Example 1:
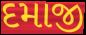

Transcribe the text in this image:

દમાજી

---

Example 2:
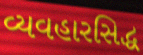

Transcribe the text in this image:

વ્યવહારસિદ્ધ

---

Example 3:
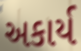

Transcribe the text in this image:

અકાર્ય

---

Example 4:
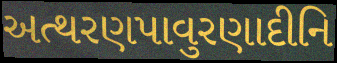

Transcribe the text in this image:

અત્થરણપાવુરણાદીનિ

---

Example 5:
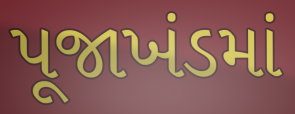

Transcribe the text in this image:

પૂજાખંડમાં